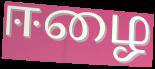
ஈழை